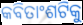
କବିତାଂଶଟିକୁ